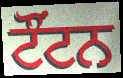
ਟੌਂਟਨ